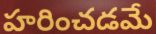
హరించడమే